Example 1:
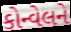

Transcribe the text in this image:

કોન્વેલને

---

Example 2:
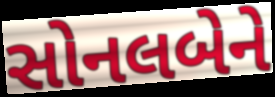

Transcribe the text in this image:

સોનલબેને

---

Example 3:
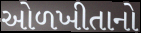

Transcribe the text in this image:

ઓળખીતાનો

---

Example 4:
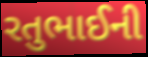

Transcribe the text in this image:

રતુભાઈની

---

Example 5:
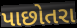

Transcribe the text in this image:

પાછોતરા